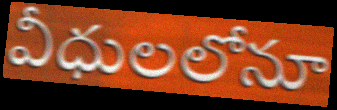
వీధులలోనూ